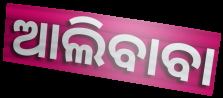
ଆଲିବାବା